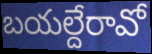
బయల్దేరావో